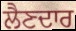
ਲੈਣਦਾਰ